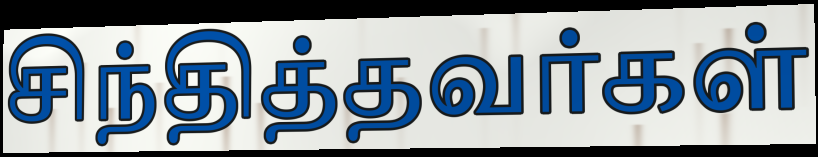
சிந்தித்தவர்கள்